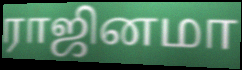
ராஜினமா